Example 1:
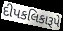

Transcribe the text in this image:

દીપકલિકારૂપે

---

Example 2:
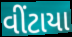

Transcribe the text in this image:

વીંટાયા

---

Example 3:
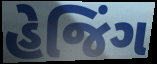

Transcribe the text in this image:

હેજિંગ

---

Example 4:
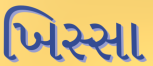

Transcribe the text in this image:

ખિસ્સા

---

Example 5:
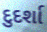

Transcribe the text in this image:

દુદર્શા